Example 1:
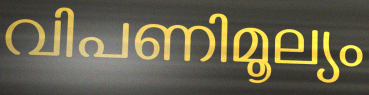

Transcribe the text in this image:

വിപണിമൂല്യം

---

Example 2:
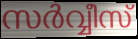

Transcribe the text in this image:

സർവ്വീസ്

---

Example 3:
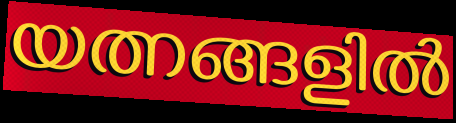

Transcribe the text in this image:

യത്നങ്ങളിൽ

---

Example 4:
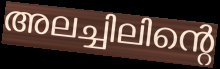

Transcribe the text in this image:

അലച്ചിലിന്റെ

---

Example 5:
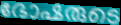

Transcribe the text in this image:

ഭോഷരുടെ